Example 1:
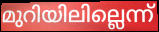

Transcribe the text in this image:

മുറിയിലില്ലെന്ന്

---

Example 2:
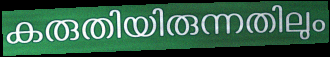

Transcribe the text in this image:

കരുതിയിരുന്നതിലും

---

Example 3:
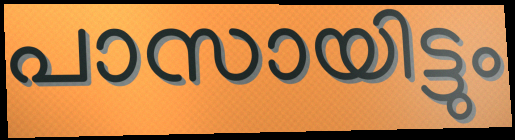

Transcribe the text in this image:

പാസായിട്ടും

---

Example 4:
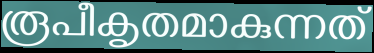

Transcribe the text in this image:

രൂപീകൃതമാകുന്നത്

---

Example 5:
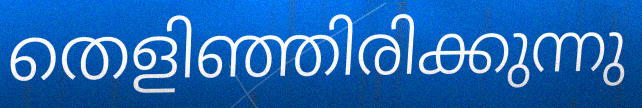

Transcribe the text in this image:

തെളിഞ്ഞിരിക്കുന്നു